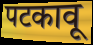
पटकावू